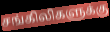
சங்கிலிகளுக்கு